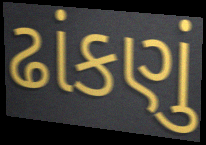
ઢાંકણું